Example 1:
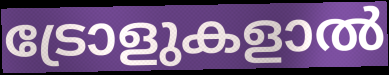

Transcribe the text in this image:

ട്രോളുകളാൽ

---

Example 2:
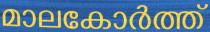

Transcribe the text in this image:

മാലകോർത്ത്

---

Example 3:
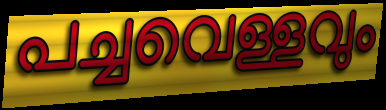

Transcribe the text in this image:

പച്ചവെള്ളവും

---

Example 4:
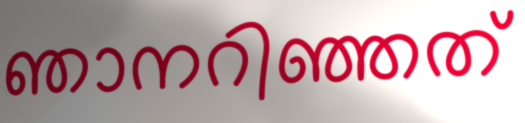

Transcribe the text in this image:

ഞാനറിഞ്ഞത്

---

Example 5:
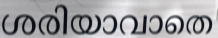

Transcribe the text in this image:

ശരിയാവാതെ